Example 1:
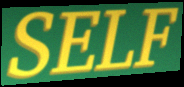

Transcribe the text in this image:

SELF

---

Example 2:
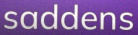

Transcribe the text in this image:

saddens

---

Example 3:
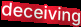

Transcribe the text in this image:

deceiving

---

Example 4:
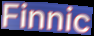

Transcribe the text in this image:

Finnic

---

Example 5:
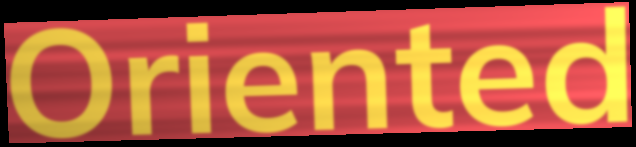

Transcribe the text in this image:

Oriented